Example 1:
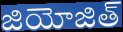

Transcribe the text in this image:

జియోజిత్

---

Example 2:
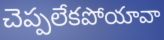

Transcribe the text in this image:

చెప్పలేకపోయావా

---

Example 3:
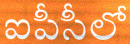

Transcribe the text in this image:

ఐపీసీలో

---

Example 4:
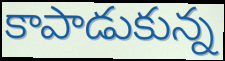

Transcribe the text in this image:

కాపాడుకున్న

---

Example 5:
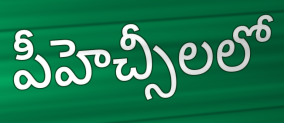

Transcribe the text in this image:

పీహెచ్సీలలో